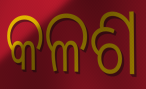
କଳଶ